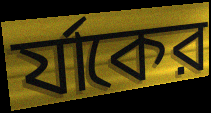
র্যাকের